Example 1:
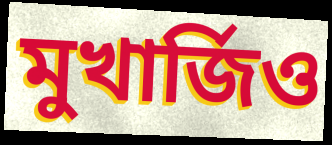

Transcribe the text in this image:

মুখার্জিও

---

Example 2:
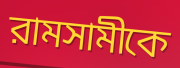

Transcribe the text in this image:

রামসামীকে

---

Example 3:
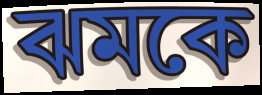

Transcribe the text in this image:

ঝমকে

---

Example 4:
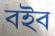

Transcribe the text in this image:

বইব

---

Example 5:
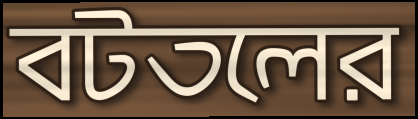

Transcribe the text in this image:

বটতলের